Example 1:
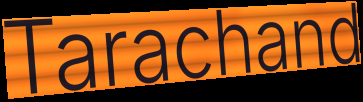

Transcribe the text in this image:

Tarachand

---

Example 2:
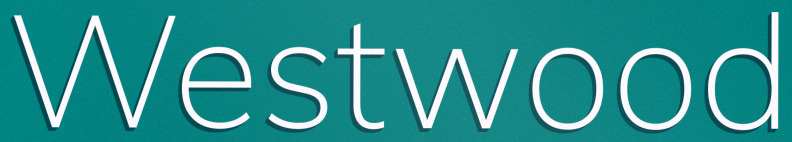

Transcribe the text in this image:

Westwood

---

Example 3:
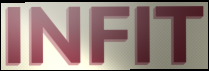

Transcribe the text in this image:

INFIT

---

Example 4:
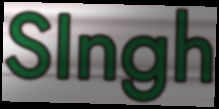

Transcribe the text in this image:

SIngh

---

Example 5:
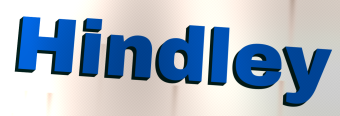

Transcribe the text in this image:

Hindley